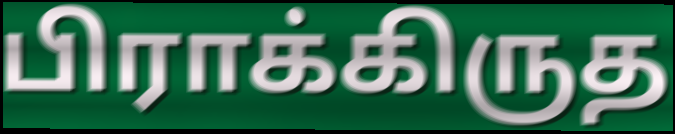
பிராக்கிருத